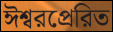
ঈশ্বরপ্রেরিত